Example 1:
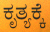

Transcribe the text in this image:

ಕೃತ್ಯಕ್ಕೆ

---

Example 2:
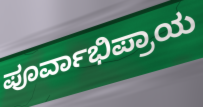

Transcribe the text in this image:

ಪೂರ್ವಾಭಿಪ್ರಾಯ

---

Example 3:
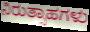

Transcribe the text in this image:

ನಿರುತ್ಸಾಹಗಳು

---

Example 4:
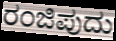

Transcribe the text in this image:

ರಂಜಿಪುದು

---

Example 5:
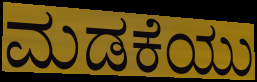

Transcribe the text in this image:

ಮಡಕೆಯು